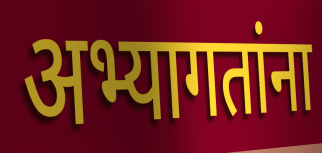
अभ्यागतांना